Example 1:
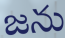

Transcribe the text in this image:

జను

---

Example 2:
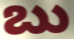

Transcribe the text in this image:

బు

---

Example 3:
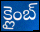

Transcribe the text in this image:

క్లైంబ్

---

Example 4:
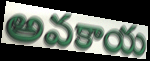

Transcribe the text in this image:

అవకాయ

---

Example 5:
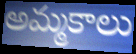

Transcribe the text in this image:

అమ్మకాలు